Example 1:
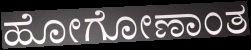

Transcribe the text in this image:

ಹೋಗೋಣಾಂತ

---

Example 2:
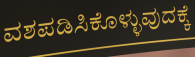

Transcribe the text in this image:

ವಶಪಡಿಸಿಕೊಳ್ಳುವುದಕ್ಕೆ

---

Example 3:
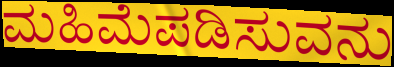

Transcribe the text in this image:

ಮಹಿಮೆಪಡಿಸುವನು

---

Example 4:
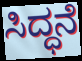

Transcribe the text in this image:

ಸಿದ್ಧನೆ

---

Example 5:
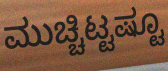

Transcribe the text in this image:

ಮುಚ್ಚಿಟ್ಟಷ್ಟೂ